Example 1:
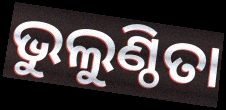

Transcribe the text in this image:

ଭୁଲୁଣ୍ଠିତା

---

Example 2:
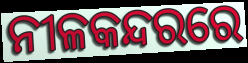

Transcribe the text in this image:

ନୀଳକନ୍ଦରରେ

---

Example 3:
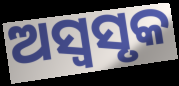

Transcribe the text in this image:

ଅସ୍ୱସୃକ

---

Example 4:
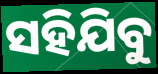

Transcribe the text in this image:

ସହିଯିବୁ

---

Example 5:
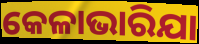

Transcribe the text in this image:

କେଳାଭାରିଯା